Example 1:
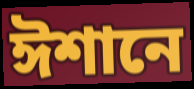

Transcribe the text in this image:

ঈশানে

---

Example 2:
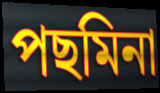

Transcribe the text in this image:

পছমিনা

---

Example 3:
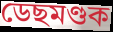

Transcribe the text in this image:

ডেছমণ্ডক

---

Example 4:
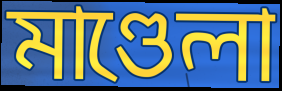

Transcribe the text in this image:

মাণ্ডেলা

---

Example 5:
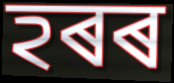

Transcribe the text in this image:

হৰৰ